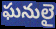
ఘనులై